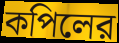
কপিলের